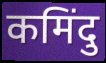
कमिंदु